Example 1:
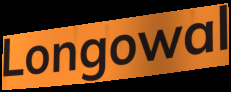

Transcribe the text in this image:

Longowal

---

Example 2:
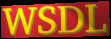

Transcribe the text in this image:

WSDL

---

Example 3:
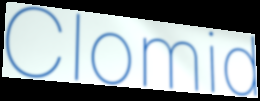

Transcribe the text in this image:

Clomid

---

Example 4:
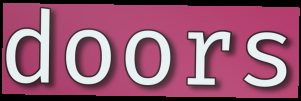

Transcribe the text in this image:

doors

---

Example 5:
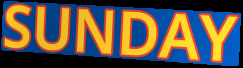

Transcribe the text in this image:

SUNDAY